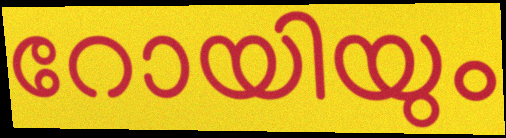
റോയിയും